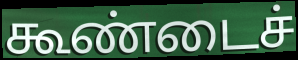
கூண்டைச்